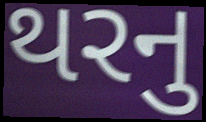
થરનુ